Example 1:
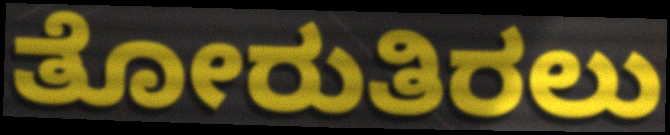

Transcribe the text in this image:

ತೋರುತಿರಲು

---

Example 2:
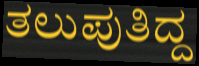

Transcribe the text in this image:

ತಲುಪುತಿದ್ದ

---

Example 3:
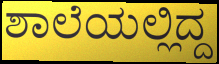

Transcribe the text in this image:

ಶಾಲೆಯಲ್ಲಿದ್ದ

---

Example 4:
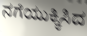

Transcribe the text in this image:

ನಗೆಯುಕ್ಕಿಸಿದ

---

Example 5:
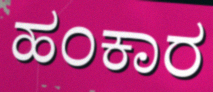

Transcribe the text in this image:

ಹಂಕಾರ